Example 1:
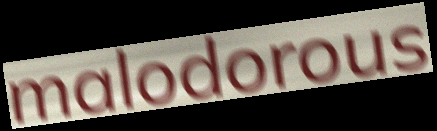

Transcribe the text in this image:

malodorous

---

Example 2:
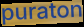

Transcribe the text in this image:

puraton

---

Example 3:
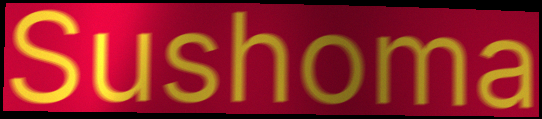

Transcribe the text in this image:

Sushoma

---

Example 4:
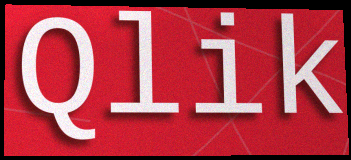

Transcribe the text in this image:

Qlik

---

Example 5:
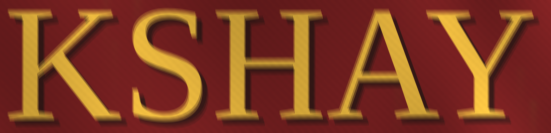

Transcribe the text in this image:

KSHAY